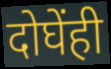
दोघेंही